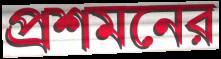
প্রশমনের